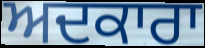
ਅਦਕਾਰਾ